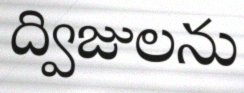
ద్విజులను